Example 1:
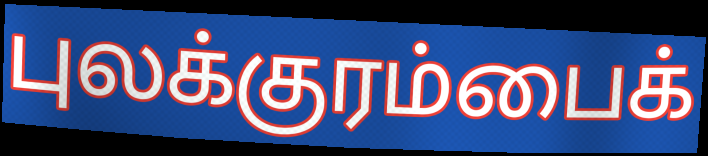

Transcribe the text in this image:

புலக்குரம்பைக்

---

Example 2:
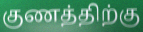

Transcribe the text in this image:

குணத்திற்கு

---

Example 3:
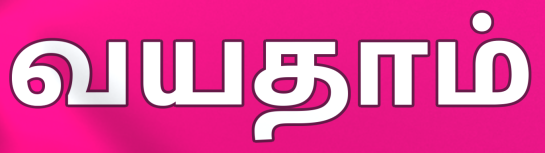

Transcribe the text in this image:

வயதாம்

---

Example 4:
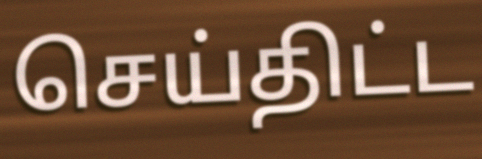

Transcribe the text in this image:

செய்திட்ட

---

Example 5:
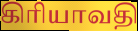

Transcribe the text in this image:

கிரியாவதி